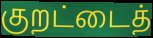
குறட்டைத்